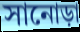
সানোড়া